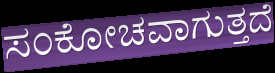
ಸಂಕೋಚವಾಗುತ್ತದೆ